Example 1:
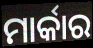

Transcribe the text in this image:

ମାର୍କାର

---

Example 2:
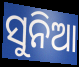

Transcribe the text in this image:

ସୁନିଆ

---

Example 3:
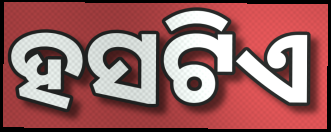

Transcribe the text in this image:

ହସଟିଏ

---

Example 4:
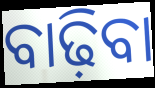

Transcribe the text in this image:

ବାଢ଼ିବା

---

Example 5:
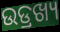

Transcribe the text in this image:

ଉଡ୍ରଖ୍ୟ